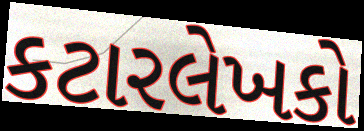
કટારલેખકો